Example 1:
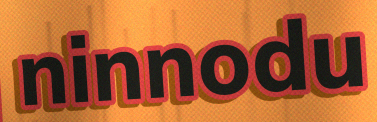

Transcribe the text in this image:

ninnodu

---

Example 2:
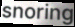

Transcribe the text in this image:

snoring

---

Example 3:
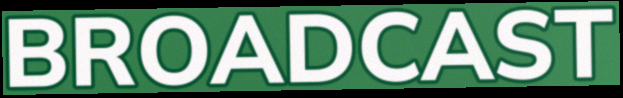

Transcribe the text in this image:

BROADCAST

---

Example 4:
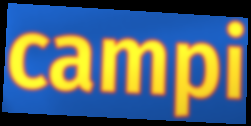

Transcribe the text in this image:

campi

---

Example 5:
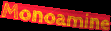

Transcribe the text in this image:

Monoamine